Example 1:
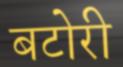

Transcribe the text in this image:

बटोरी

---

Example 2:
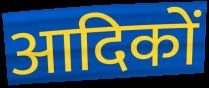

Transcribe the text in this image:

आदिकों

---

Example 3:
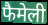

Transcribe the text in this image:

फैमेली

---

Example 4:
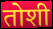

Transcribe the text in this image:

तोशी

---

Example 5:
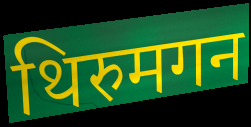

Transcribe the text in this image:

थिरुमगन